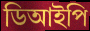
ডিআইপি